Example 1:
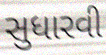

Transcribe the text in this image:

સુધારવી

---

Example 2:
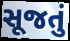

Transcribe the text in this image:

સૂજતું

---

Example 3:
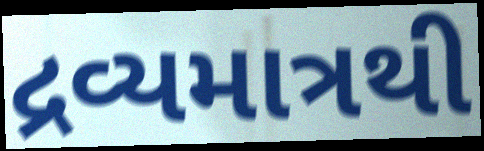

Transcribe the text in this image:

દ્રવ્યમાત્રથી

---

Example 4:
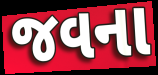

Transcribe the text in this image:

જવના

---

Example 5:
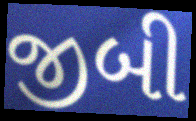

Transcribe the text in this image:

જીબી